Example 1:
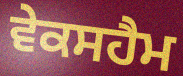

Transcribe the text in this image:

ਵੇਕਸਹੈਮ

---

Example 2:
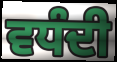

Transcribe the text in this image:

ਵਧੰਦੀ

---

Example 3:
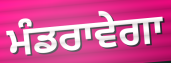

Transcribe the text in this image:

ਮੰਡਰਾਵੇਗਾ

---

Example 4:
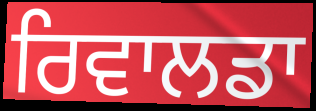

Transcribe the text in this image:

ਰਿਵਾਲਡਾ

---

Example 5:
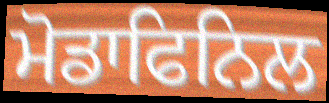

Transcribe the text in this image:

ਮੋਡਾਫਿਨਿਲ